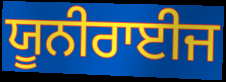
ਯੂਨੀਰਾਈਜ